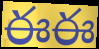
ఈఈ